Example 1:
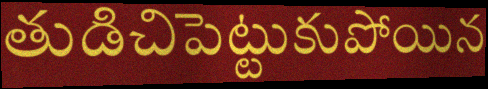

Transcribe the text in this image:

తుడిచిపెట్టుకుపోయిన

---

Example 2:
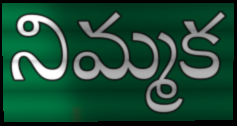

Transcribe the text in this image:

నిమ్మక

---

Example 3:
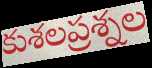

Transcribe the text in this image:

కుశలప్రశ్నల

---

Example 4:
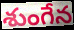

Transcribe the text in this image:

శుంగేన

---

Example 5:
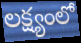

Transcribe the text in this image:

లక్ష్యంలో